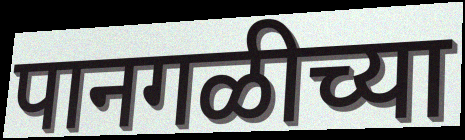
पानगळीच्या